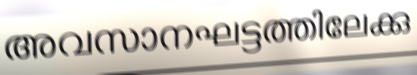
അവസാനഘട്ടത്തിലേക്കു